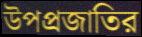
উপপ্রজাতির